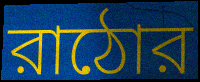
রাঠোর